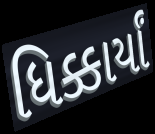
ધિક્કાર્યાં